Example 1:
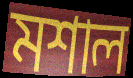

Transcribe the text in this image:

মশাল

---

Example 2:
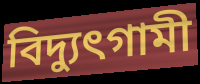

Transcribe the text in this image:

বিদ্যুৎগামী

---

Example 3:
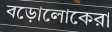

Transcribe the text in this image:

বড়োলোকেরা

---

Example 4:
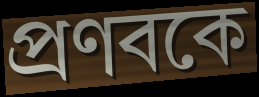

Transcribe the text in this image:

প্রণবকে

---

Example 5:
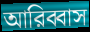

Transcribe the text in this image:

আরিব্বাস